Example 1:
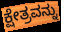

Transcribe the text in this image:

ಕ್ಷೇತ್ರವನ್ನು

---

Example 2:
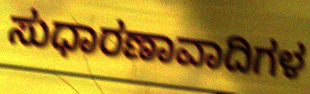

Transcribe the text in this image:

ಸುಧಾರಣಾವಾದಿಗಳ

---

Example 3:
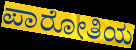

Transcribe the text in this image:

ಪಾರೋತಿಯ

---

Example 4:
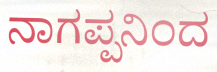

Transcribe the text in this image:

ನಾಗಪ್ಪನಿಂದ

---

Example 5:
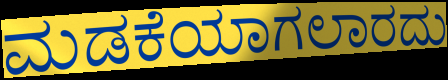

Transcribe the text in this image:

ಮಡಕೆಯಾಗಲಾರದು